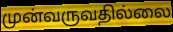
முன்வருவதில்லை